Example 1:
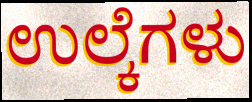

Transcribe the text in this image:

ಉಲ್ಕೆಗಳು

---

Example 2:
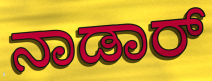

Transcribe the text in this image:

ನಾಡಾರ್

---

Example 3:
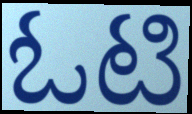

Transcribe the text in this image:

ಓಟಿ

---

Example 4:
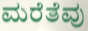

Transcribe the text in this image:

ಮರೆತೆವು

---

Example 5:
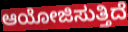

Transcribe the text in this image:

ಆಯೋಜಿಸುತ್ತಿದೆ